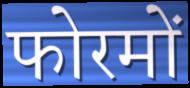
फोरमों